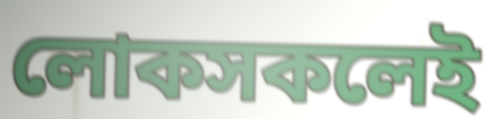
লোকসকলেই